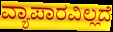
ವ್ಯಾಪಾರವಿಲ್ಲದೆ